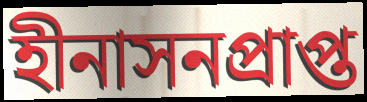
হীনাসনপ্রাপ্ত